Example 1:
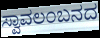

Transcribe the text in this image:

ಸ್ವಾವಲಂಬನದ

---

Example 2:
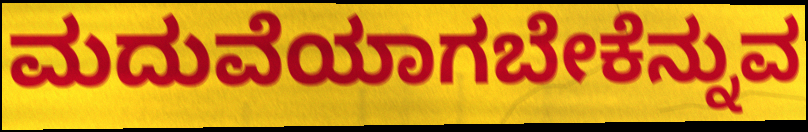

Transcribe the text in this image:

ಮದುವೆಯಾಗಬೇಕೆನ್ನುವ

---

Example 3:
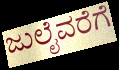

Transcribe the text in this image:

ಜುಲೈವರೆಗೆ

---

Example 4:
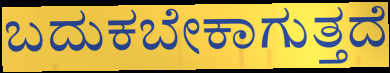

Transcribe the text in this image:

ಬದುಕಬೇಕಾಗುತ್ತದೆ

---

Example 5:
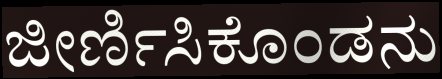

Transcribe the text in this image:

ಜೀರ್ಣಿಸಿಕೊಂಡನು